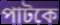
পাটকে